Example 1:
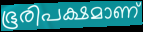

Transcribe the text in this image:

ഭൂരിപക്ഷമാണ്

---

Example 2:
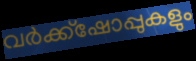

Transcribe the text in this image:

വർക്ക്ഷോപ്പുകളും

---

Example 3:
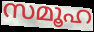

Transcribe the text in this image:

സമൂഹ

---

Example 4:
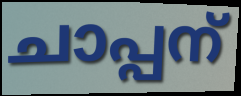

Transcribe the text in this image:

ചാപ്പന്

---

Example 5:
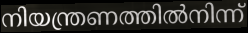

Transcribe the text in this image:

നിയന്ത്രണത്തിൽനിന്ന്